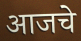
आजचे